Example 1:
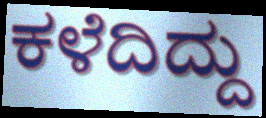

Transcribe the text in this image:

ಕಳೆದಿದ್ದು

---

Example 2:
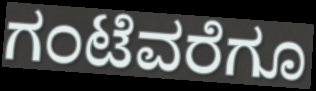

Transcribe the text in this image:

ಗಂಟೆವರೆಗೂ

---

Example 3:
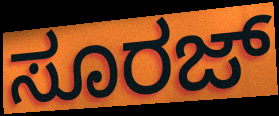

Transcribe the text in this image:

ಸೂರಜ್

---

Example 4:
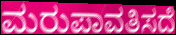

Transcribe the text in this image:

ಮರುಪಾವತಿಸದೆ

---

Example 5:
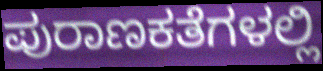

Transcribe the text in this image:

ಪುರಾಣಕತೆಗಳಲ್ಲಿ